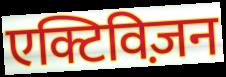
एक्टिविज़न